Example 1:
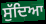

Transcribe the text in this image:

ਸੁੱਦਿਆ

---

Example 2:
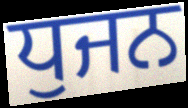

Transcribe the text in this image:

ਧੁਜਨ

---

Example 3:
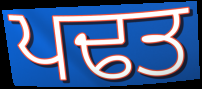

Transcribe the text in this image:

ਪਢਤ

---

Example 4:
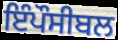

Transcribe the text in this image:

ਇੰਪੌਸੀਬਲ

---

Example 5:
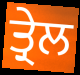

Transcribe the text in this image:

ਤ੍ਰੇਲ